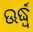
ଊର୍ଦ୍ଧ୍ବ